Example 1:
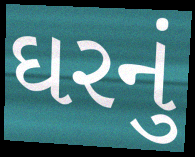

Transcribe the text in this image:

ઘરનું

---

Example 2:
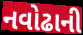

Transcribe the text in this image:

નવોઢાની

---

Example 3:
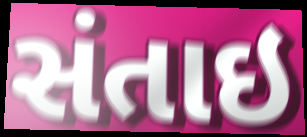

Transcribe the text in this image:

સંતાઇ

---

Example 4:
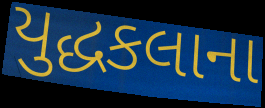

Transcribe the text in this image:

યુદ્ધકલાના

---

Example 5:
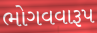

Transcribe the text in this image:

ભોગવવારૂપ